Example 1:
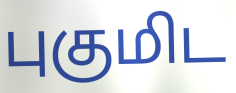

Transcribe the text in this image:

புகுமிட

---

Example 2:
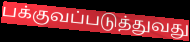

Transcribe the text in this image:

பக்குவப்படுத்துவது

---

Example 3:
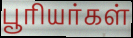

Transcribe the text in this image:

பூரியர்கள்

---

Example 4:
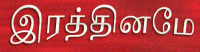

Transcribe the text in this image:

இரத்தினமே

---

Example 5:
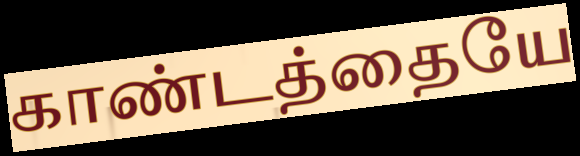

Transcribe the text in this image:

காண்டத்தையே